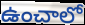
ఉంచాలో